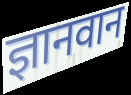
ज्ञानवान